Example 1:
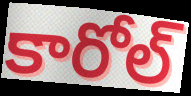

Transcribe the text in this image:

కారోల్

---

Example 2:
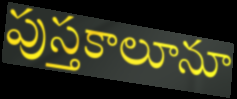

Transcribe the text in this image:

పుస్తకాలూనూ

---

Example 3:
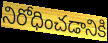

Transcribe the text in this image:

నిరోధించడానికి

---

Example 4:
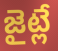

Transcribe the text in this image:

జైట్లే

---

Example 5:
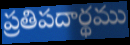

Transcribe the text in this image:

ప్రతిపదార్థము